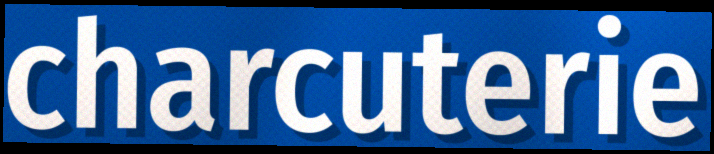
charcuterie